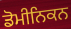
ਡੋਮੀਨਿਕਨ